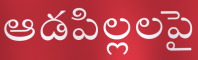
ఆడపిల్లలపై